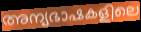
അന്യഭാഷകളിലെ